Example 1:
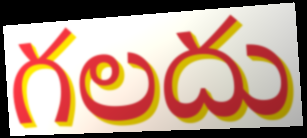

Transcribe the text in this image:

గలదు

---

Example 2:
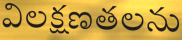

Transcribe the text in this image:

విలక్షణతలను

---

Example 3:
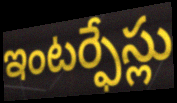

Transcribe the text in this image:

ఇంటర్ఫేస్లు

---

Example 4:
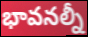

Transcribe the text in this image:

భావనల్నీ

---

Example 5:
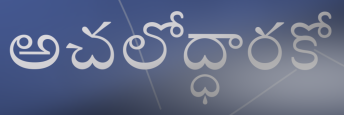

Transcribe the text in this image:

అచలోద్ధారకో